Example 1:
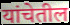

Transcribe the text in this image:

यांचेतील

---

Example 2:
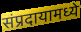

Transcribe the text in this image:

संप्रदायामध्ये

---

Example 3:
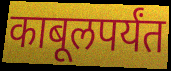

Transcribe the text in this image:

काबूलपर्यंत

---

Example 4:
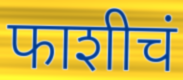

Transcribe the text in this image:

फाशीचं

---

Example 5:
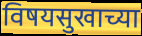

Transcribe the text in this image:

विषयसुखाच्या